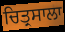
ਚਿਤ੍ਰਸਾਲਾ